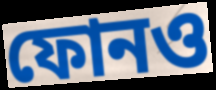
ফোনও